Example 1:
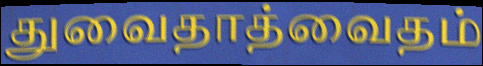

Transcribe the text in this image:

துவைதாத்வைதம்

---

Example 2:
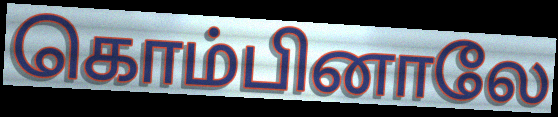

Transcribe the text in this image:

கொம்பினாலே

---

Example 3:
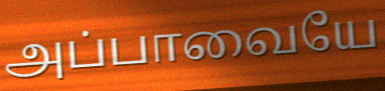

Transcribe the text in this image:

அப்பாவையே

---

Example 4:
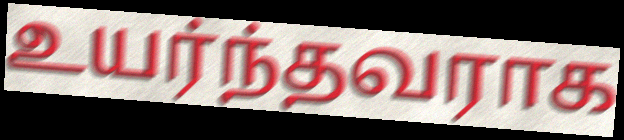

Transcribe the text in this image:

உயர்ந்தவராக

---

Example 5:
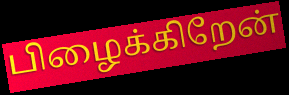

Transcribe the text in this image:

பிழைக்கிறேன்